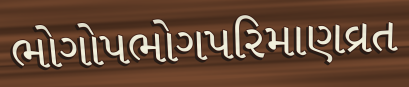
ભોગોપભોગપરિમાણવ્રત